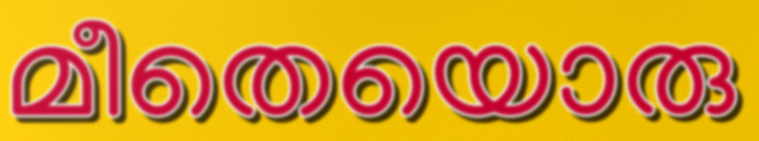
മീതെയൊരു